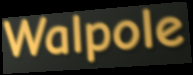
Walpole